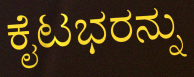
ಕೈಟಭರನ್ನು